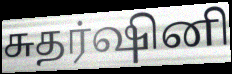
சுதர்ஷினி